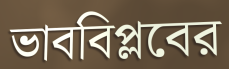
ভাববিপ্লবের